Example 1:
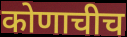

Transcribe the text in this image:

कोणाचीच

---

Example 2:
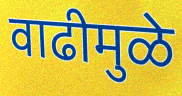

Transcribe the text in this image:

वाढीमुळे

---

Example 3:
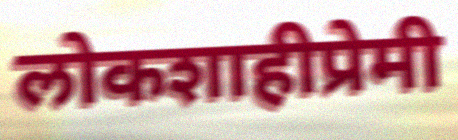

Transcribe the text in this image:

लोकशाहीप्रेमी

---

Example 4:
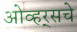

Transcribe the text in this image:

ओव्हर्सचे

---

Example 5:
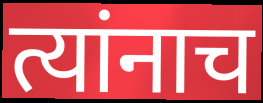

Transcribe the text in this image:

त्यांनाच